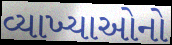
વ્યાખ્યાઓનો